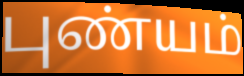
புண்யம்